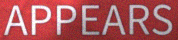
APPEARS